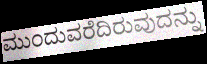
ಮುಂದುವರೆದಿರುವುದನ್ನು